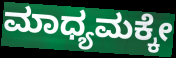
ಮಾಧ್ಯಮಕ್ಕೇ